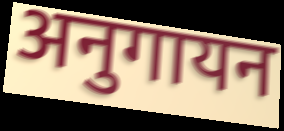
अनुगायन